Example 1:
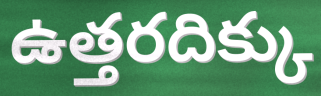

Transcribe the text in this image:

ఉత్తరదిక్కు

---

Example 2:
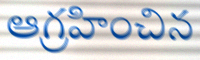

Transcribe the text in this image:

ఆగ్రహించిన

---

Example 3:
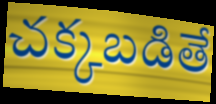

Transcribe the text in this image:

చక్కబడితే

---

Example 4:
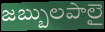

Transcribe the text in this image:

జబ్బులపాలై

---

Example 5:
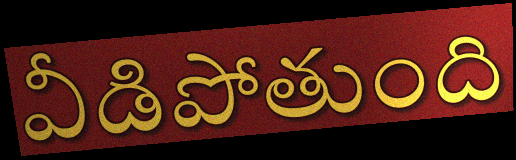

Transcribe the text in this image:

వీడిపోతుంది